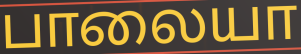
பாலையா